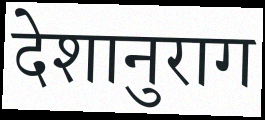
देशानुराग